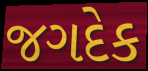
જગદેક